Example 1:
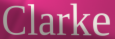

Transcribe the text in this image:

Clarke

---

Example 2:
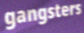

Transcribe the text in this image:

gangsters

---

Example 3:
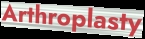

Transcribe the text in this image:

Arthroplasty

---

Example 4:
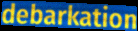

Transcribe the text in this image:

debarkation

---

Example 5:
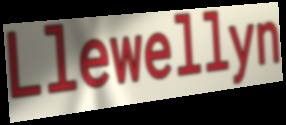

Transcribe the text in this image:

Llewellyn